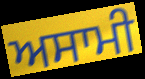
ਅਸਾਮੀ